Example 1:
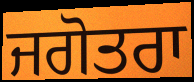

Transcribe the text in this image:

ਜਗੋਤਰਾ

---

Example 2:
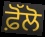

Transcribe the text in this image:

ਫ਼ੋੱਲੋ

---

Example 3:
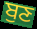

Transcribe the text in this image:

ਬੁਣ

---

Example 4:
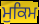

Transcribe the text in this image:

ਮੁਕਿਮ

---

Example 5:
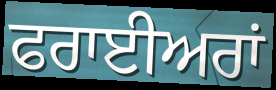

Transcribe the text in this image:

ਫਰਾਈਅਰਾਂ